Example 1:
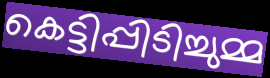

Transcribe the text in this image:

കെട്ടിപ്പിടിച്ചുമ്മ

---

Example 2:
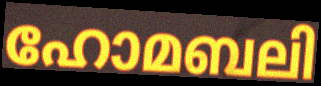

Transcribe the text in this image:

ഹോമബലി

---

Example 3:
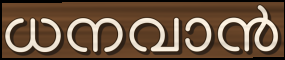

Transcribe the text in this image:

ധനവാൻ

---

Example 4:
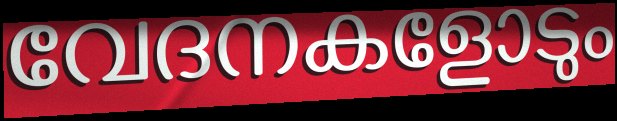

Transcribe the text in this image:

വേദനകളോടും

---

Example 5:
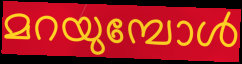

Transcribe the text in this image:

മറയുമ്പോൾ